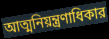
আত্মনিয়ন্ত্রণাধিকার